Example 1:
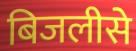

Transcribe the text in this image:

बिजलीसे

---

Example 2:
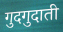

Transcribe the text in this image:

गुदगुदाती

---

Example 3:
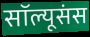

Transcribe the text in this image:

सॉल्यूसंस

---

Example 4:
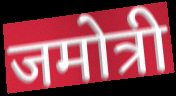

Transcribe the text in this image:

जमोत्री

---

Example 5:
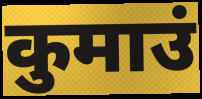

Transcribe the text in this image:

कुमाउं